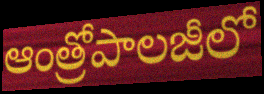
ఆంత్రోపాలజీలో